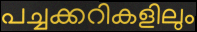
പച്ചക്കറികളിലും